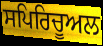
ਸਪਿਰਿਚੂਅਲ